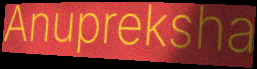
Anupreksha